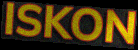
ISKON